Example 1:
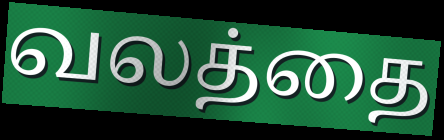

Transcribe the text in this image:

வலத்தை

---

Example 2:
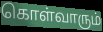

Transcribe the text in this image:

கொள்வாரும்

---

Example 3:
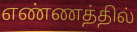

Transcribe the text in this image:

எண்ணத்தில்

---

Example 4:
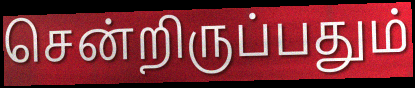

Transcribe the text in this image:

சென்றிருப்பதும்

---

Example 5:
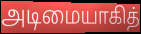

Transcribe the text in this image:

அடிமையாகித்